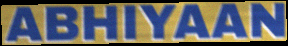
ABHIYAAN